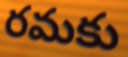
రమకు